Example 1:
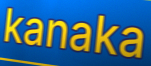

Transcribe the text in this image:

kanaka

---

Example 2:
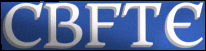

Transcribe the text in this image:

CBFTE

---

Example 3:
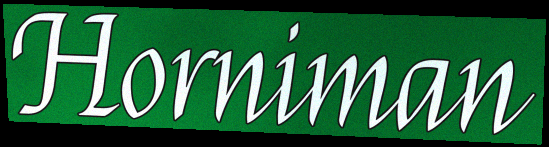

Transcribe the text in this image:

Horniman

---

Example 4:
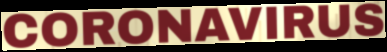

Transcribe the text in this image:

CORONAVIRUS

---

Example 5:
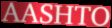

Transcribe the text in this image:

AASHTO